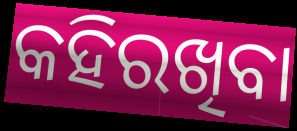
କହିରଖିବା